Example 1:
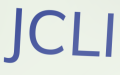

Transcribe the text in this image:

JCLI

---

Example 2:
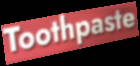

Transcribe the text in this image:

Toothpaste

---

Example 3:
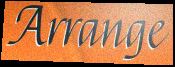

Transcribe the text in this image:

Arrange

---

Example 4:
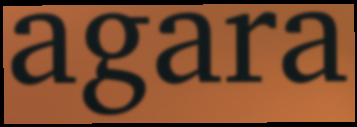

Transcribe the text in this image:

agara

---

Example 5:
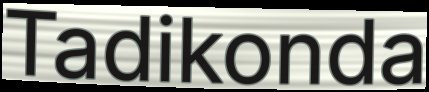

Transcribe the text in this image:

Tadikonda